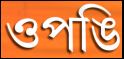
ওপঙি